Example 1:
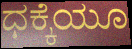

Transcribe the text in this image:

ಧಕ್ಕೆಯೂ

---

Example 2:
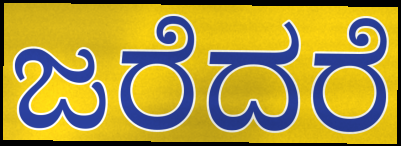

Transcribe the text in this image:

ಜರೆದರೆ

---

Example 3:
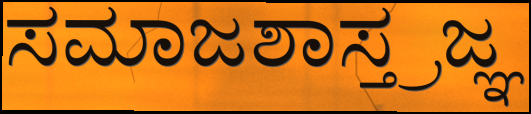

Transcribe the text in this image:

ಸಮಾಜಶಾಸ್ತ್ರಜ್ಞ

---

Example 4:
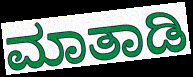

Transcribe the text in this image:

ಮಾತಾಡಿ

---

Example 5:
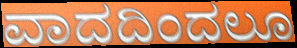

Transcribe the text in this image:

ವಾದದಿಂದಲೂ